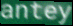
antey